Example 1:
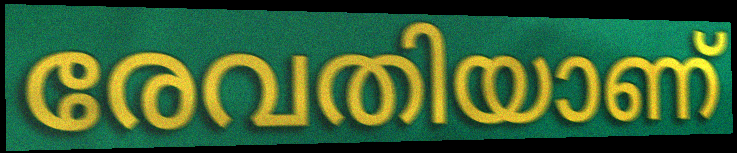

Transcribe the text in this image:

രേവതിയാണ്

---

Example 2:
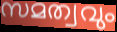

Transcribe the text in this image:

സമത്വവും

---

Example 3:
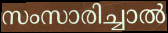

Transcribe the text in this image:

സംസാരിച്ചാൽ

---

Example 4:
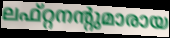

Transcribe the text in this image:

ലഫ്റ്റനന്റുമാരായ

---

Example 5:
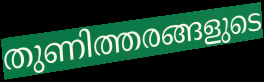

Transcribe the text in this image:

തുണിത്തരങ്ങളുടെ